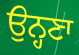
ਉਨ੍ਹਣਾ